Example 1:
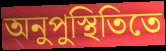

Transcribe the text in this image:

অনুপুস্থিতিতে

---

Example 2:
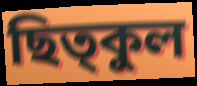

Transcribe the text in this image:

ছিত্কুল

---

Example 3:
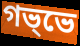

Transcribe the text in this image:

গভ্ভে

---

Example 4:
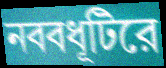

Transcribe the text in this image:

নববধূটিরে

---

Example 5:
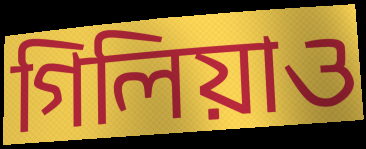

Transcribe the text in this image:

গিলিয়াও